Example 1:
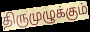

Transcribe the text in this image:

திருமுழுக்கும்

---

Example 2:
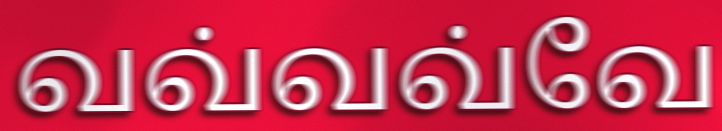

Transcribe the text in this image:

வவ்வவ்வே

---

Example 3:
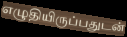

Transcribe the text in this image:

எழுதியிருப்பதுடன்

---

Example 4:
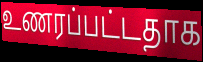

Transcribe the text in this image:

உணரப்பட்டதாக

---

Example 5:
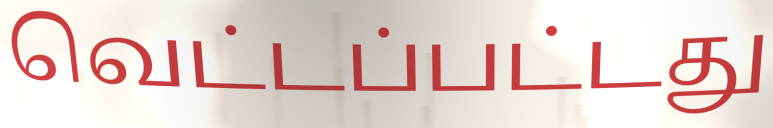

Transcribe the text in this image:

வெட்டப்பட்டது